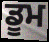
ਡੂਮ